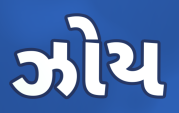
ઝોય